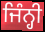
ਜਿੰਨ੍ਹੀ